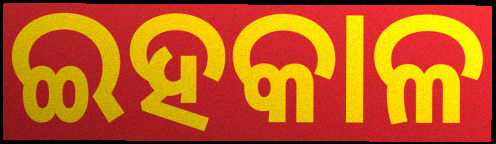
ଇହକାଳ